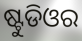
ଷ୍ଟୁଡିଓର